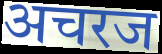
अचरज